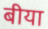
बीया